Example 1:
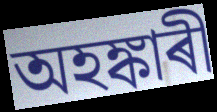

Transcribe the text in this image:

অহঙ্কাৰী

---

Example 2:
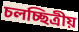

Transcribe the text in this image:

চলচ্ছিত্ৰীয়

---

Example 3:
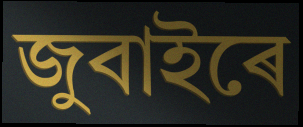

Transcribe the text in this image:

জুবাইৰে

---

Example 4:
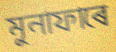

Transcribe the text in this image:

মুনাফাৰে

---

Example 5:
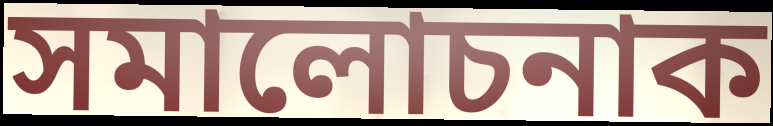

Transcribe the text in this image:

সমালোচনাক